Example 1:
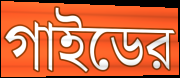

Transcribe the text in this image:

গাইডের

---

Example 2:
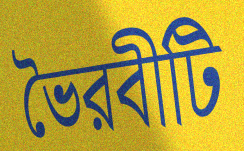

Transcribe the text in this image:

ভৈরবীটি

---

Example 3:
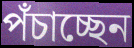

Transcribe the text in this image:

পঁচাচ্ছেন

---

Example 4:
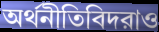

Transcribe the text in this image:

অর্থনীতিবিদরাও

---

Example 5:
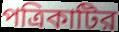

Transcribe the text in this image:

পত্রিকাটির